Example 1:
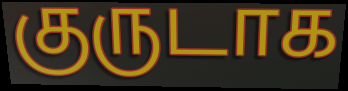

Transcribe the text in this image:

குருடாக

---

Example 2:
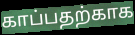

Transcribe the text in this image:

காப்பதற்காக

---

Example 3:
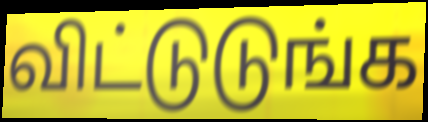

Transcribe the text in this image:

விட்டுடுங்க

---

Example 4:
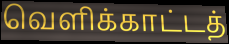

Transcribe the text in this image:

வெளிக்காட்டத்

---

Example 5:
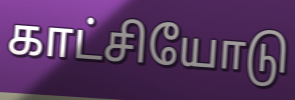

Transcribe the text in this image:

காட்சியோடு